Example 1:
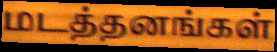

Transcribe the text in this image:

மடத்தனங்கள்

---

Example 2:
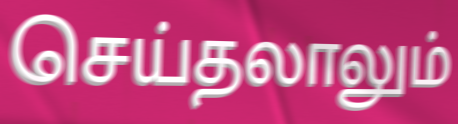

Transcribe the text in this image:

செய்தலாலும்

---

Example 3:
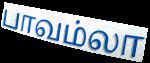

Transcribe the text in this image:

பாவம்லா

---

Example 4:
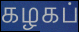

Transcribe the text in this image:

கழகப்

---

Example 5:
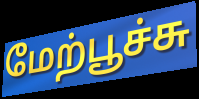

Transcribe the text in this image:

மேற்பூச்சு